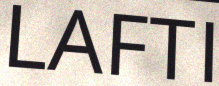
LAFTI